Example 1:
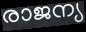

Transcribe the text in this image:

രാജന്യ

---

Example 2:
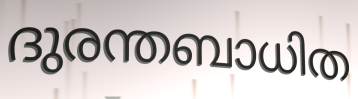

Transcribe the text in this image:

ദുരന്തബാധിത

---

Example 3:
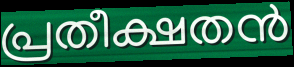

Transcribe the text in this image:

പ്രതീക്ഷതൻ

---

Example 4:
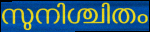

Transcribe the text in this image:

സുനിശ്ചിതം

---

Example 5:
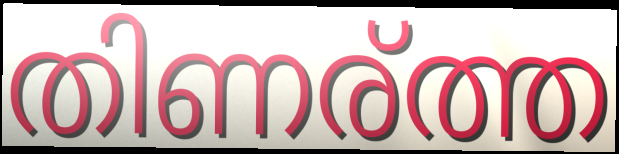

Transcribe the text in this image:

തിണര്ത്ത